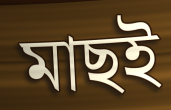
মাছই